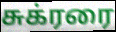
சுக்ரரை